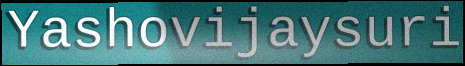
Yashovijaysuri